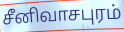
சீனிவாசபுரம்